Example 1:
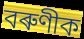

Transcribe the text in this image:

বৰুণীক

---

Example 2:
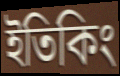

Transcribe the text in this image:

ইতিকিং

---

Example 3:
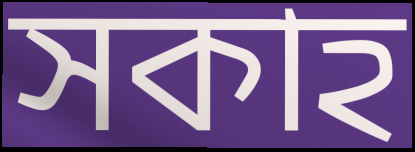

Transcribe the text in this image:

সকাহ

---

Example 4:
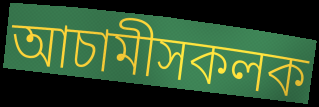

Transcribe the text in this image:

আচামীসকলক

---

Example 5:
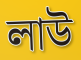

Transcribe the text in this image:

লাউ